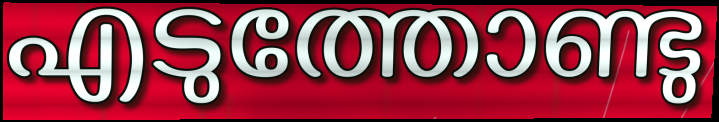
എടുത്തോണ്ടു